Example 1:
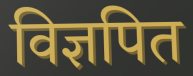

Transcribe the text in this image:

विज्ञपित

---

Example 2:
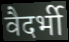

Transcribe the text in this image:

वैदर्भी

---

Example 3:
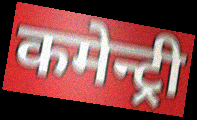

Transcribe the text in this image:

कमेन्ट्री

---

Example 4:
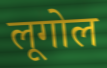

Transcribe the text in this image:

लूगोल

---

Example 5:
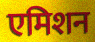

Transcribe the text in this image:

एमिशन